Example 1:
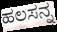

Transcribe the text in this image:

ಹಲಸನ್ನ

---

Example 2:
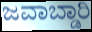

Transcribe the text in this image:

ಜವಾಬ್ಡಾರಿ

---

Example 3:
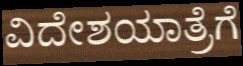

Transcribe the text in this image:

ವಿದೇಶಯಾತ್ರೆಗೆ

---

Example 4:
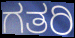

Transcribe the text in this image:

ಗತರಿ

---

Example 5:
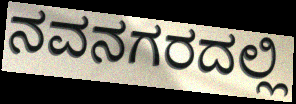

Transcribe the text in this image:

ನವನಗರದಲ್ಲಿ